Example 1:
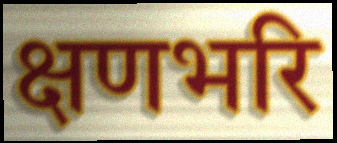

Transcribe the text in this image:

क्षणभरि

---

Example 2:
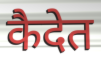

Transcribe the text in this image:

कैदेत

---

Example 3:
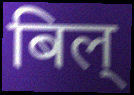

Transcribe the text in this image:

बिल्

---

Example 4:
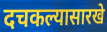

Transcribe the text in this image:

दचकल्यासारखे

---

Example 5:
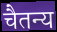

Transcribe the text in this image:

चैतन्य